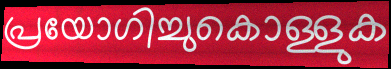
പ്രയോഗിച്ചുകൊള്ളുക